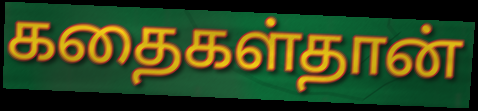
கதைகள்தான்